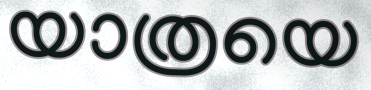
യാത്രയെ